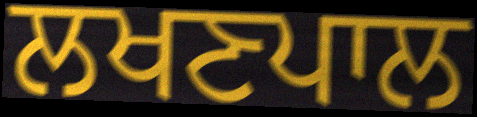
ਲਖਣਪਾਲ